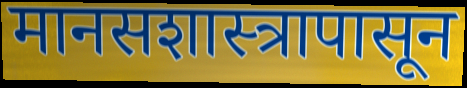
मानसशास्त्रापासून